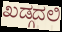
ಖಡ್ಗದಲಿ